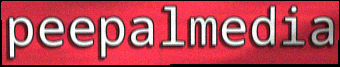
peepalmedia